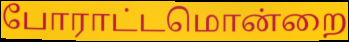
போராட்டமொன்றை